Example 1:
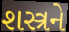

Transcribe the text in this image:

શસ્ત્રને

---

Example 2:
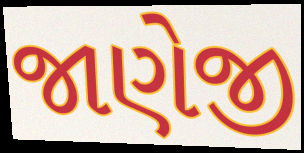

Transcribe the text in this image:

જાણેજી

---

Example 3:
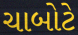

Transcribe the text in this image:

ચાબોટે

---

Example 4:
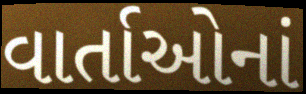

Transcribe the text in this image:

વાર્તાઓનાં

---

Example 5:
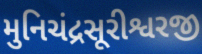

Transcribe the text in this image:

મુનિચંદ્રસૂરીશ્વરજી